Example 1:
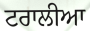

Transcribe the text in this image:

ਟਰਾਲੀਆ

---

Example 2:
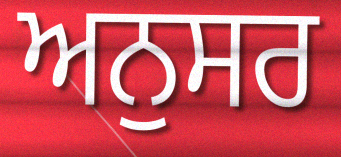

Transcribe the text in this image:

ਅਨੁਸਰ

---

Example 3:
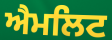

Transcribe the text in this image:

ਐਮਲਿਟ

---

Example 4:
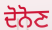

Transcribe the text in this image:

ਦੋਨੋਣ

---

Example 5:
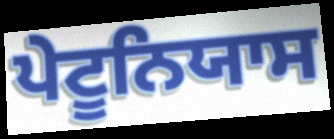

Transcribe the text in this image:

ਪੇਟੂਨਿਯਾਸ